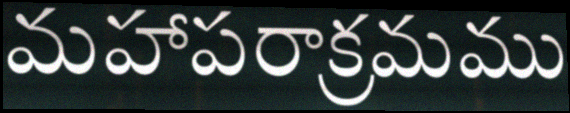
మహాపరాక్రమము